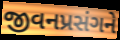
જીવનપ્રસંગને